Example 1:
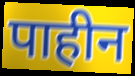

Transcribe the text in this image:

पाहीन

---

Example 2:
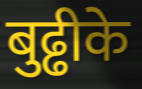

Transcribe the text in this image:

बुढ्ढीके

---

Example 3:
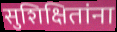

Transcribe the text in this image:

सुशिक्षितांना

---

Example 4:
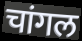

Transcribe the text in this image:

चांगल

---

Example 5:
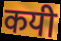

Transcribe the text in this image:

कयी